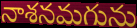
నాశనమగును